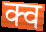
क्व